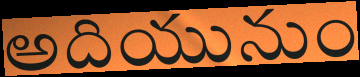
అదియునుం